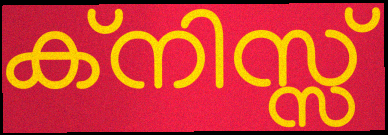
ക്നിസ്സ്